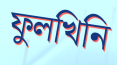
ফুলখিনি